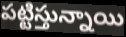
పట్టిస్తున్నాయి